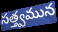
సత్త్వమున